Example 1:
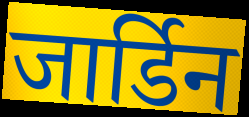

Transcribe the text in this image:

जार्डिन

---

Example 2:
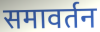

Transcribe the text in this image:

समावर्तन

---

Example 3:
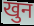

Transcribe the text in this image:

खुन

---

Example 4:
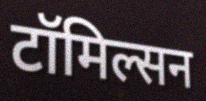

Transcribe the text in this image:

टॉमिल्सन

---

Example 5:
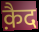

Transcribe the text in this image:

क़ैद